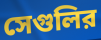
সেগুলির